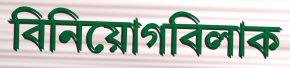
বিনিয়োগবিলাক